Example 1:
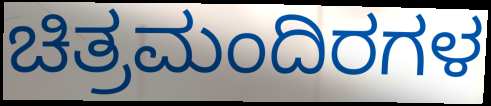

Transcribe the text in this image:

ಚಿತ್ರಮಂದಿರಗಳ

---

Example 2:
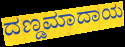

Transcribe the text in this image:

ದಣ್ಡಮಾದಾಯ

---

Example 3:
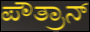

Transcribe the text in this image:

ಪೌತ್ರಾನ್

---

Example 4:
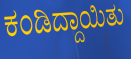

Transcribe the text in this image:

ಕಂಡಿದ್ದಾಯಿತು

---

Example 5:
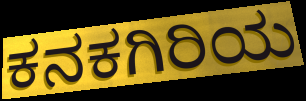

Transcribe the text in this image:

ಕನಕಗಿರಿಯ